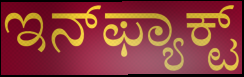
ಇನ್‌ಫ್ಯಾಕ್ಟ್